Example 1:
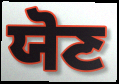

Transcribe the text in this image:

ਯੋਣ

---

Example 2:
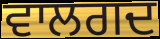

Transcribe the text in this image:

ਵਾਲਗਦ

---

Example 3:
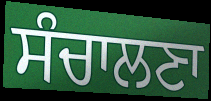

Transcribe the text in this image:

ਸੰਚਾਲਣਾ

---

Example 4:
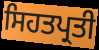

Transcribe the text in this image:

ਸਿਹਤਪ੍ਰਤੀ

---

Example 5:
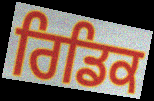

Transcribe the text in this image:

ਰਿਡਿਕ